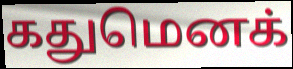
கதுமெனக்